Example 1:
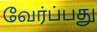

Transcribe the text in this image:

வேர்ப்பது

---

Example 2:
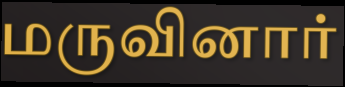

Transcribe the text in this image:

மருவினார்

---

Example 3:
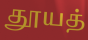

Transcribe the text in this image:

தூயத்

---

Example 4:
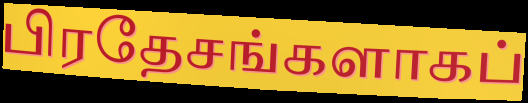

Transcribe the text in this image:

பிரதேசங்களாகப்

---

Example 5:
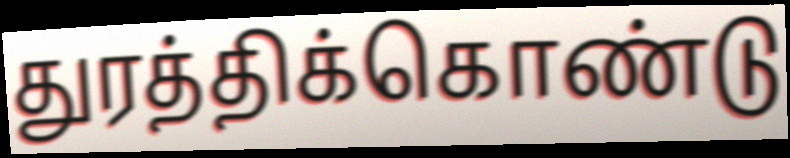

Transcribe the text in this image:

துரத்திக்கொண்டு